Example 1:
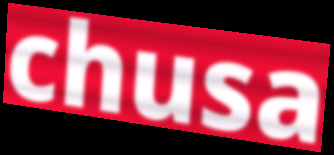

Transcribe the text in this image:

chusa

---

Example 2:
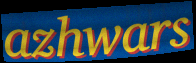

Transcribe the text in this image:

azhwars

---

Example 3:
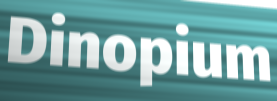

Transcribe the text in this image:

Dinopium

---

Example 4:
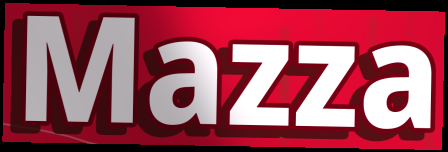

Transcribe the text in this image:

Mazza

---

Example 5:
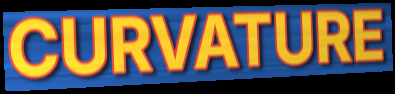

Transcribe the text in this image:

CURVATURE